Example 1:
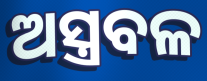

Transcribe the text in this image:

ଅସ୍ତ୍ରବଳ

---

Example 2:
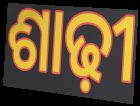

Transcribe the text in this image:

ଶାଢ଼ୀ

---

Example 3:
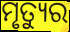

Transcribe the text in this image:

ମୃତ୍ୟୁର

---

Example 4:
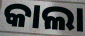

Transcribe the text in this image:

କାଲା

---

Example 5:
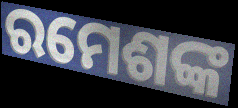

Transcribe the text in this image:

ରମେଶଙ୍କ